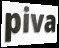
piva